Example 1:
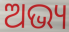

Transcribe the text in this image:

ଅଭ୍ୟ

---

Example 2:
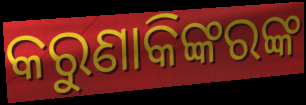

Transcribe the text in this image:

କରୁଣାକିଙ୍କରଙ୍କ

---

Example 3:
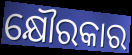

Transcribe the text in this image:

କ୍ଷୌରକାର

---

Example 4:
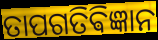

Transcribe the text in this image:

ତାପଗତିଵିଜ୍ଞାନ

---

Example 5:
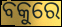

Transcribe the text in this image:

ବକୁରେ